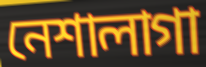
নেশালাগা